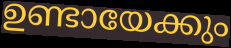
ഉണ്ടായേക്കും